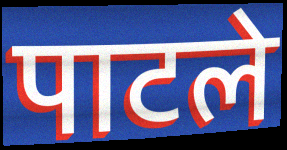
पाटले